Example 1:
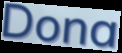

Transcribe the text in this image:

Dona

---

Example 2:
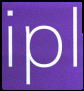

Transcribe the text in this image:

ipl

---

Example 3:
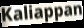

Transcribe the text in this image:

Kaliappan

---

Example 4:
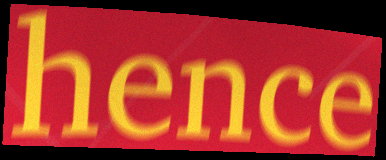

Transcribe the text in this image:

hence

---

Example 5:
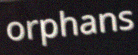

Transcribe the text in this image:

orphans